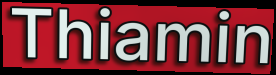
Thiamin